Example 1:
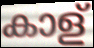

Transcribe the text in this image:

കാള്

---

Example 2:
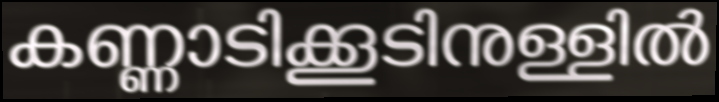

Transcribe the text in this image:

കണ്ണാടിക്കൂടിനുള്ളിൽ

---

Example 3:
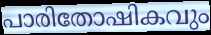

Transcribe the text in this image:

പാരിതോഷികവും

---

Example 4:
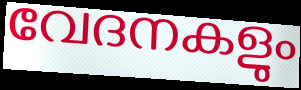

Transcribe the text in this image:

വേദനകളും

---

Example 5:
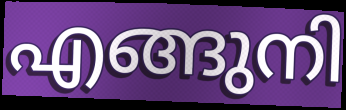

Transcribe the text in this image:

എങ്ങുനി